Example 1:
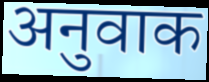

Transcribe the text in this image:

अनुवाक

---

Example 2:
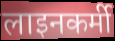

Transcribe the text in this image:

लाइनकर्मी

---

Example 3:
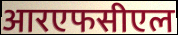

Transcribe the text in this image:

आरएफसीएल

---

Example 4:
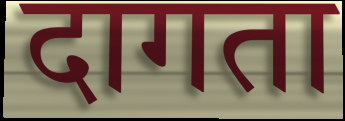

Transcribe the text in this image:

दागता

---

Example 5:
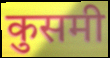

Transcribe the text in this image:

कुसमी